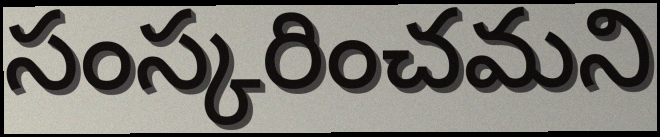
సంస్కరించమని